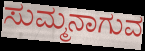
ಸುಮ್ಮನಾಗುವ